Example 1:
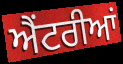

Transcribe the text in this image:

ਐਂਟਰੀਆਂ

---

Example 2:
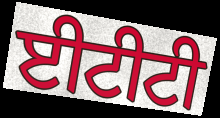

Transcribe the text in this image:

ਈਟੀਟੀ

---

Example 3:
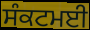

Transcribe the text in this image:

ਸੰਕਟਮਈ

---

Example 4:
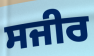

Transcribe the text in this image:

ਸਜੀਰ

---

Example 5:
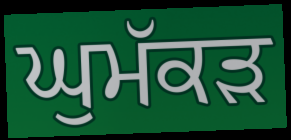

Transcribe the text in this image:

ਘੁਮੱਕੜ